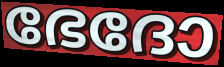
ഭേദോ